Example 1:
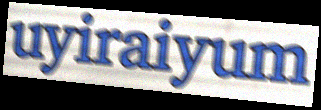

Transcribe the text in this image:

uyiraiyum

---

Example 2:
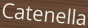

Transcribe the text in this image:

Catenella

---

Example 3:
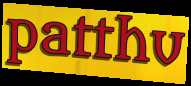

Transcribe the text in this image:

patthu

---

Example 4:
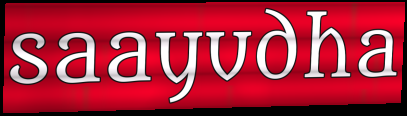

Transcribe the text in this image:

saayudha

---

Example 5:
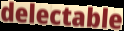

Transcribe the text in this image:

delectable